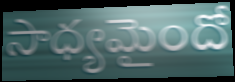
సాధ్యమైందో